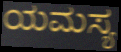
ಯಮಸ್ಯ